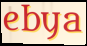
ebya